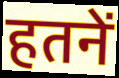
हतनें